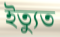
ইত্যুত